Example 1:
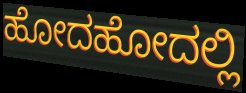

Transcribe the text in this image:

ಹೋದಹೋದಲ್ಲಿ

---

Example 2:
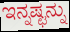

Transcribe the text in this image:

ಇನ್ನಷ್ಟನ್ನು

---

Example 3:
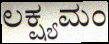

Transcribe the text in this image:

ಲಕ್ಷ್ಯಮಂ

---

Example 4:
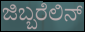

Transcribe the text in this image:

ಜಿಬ್ಬರೆಲಿನ್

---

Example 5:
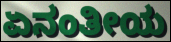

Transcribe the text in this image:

ಏನಂತೀಯ